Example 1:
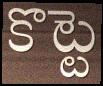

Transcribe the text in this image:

కొట్టె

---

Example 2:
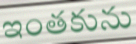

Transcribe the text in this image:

ఇంతకును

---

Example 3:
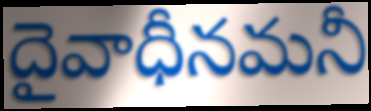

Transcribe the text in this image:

దైవాధీనమనీ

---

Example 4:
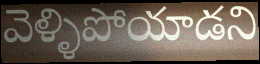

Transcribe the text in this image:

వెళ్ళిపోయాడని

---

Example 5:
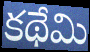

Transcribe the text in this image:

కథేమి